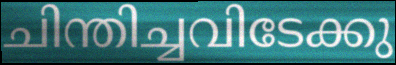
ചിന്തിച്ചവിടേക്കു